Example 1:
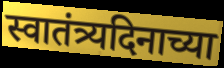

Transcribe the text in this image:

स्वातंत्र्यदिनाच्या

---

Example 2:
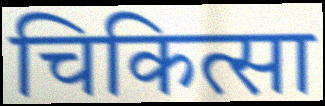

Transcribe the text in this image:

चिकित्सा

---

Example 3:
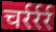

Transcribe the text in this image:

चर्रर्रर्र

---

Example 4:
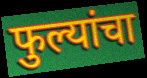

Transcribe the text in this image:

फुल्यांचा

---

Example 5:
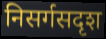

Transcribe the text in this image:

निसर्गसदृश